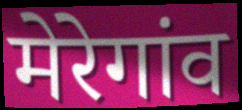
मेरेगांव